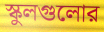
স্কুলগুলোর